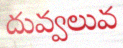
దువ్వలువ